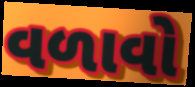
વળાવો